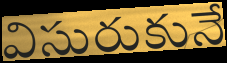
విసురుకునే